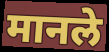
मानले